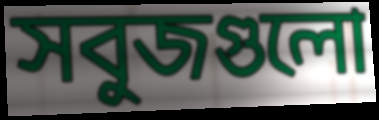
সবুজগুলো